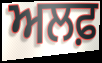
ਅਲਫ਼